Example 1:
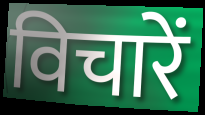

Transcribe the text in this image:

विचारें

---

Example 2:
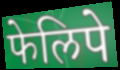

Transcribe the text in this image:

फेलिपे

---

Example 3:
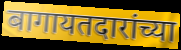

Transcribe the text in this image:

बागायतदारांच्या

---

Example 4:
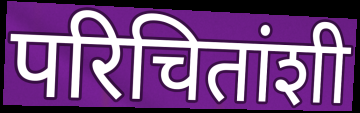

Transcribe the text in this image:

परिचितांशी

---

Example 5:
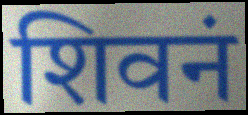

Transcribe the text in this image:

शिवनं